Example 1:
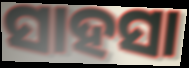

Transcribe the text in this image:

ସାହସା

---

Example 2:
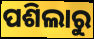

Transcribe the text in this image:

ପଶିଲାରୁ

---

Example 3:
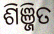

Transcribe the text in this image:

ଶିଞ୍ଜିତ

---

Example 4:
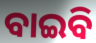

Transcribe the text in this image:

ବାଇବି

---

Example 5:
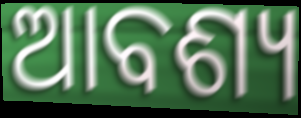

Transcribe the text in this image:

ଆବଶ୍ୟ